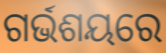
ଗର୍ଭଶୟରେ